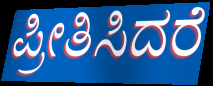
ಪ್ರೀತಿಸಿದರೆ